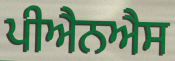
ਪੀਐਨਐਸ